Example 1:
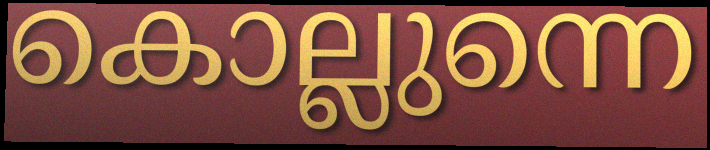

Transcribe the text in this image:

കൊല്ലുന്നെ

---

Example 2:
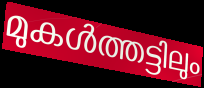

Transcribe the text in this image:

മുകൾത്തട്ടിലും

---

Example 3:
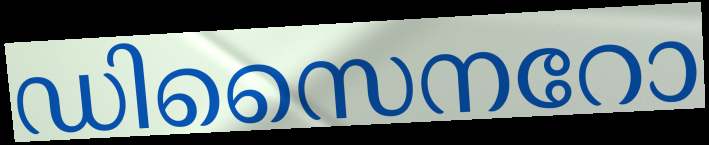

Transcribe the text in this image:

ഡിസൈനറോ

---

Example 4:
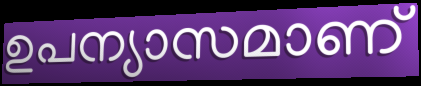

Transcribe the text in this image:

ഉപന്യാസമാണ്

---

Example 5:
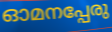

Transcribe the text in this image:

ഓമനപ്പേരു